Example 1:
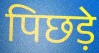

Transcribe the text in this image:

पिछड़े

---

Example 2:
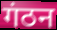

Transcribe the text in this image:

गंठन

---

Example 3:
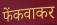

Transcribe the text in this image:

फेंकवाकर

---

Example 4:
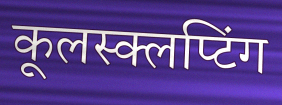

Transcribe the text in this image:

कूलस्क्लप्टिंग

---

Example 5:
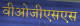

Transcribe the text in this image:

वीओजीएसएस